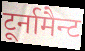
टूर्नामैन्ट